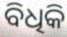
ବିଧିକି